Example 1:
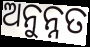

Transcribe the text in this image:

ଅନୁନ୍ନତ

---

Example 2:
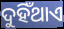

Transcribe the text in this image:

ଦୁହିଁଥାଏ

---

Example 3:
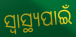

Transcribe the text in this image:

ସ୍ବାସ୍ଥ୍ୟପାଇଁ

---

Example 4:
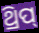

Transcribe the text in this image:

ଥ୍ରିପ୍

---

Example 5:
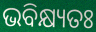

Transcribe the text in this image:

ଭବିକ୍ଷ୍ୟତଃ